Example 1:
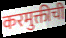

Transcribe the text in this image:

करमुक्तीची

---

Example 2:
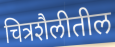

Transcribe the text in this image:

चित्रशैलीतील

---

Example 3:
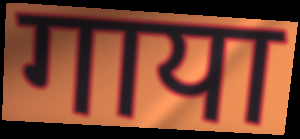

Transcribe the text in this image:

गाया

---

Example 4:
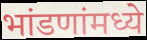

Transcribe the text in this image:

भांडणांमध्ये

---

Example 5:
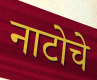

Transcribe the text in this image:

नाटोचे